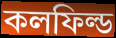
কলফিল্ড